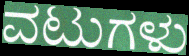
ವಟುಗಳು